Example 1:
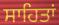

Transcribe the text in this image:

ਸਾਹਿਤਾਂ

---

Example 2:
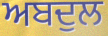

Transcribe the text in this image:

ਅਬਦੁਲ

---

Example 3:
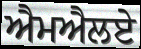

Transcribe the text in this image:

ਐਮਐਲਏ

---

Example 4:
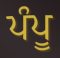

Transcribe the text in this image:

ਪੰਪੂ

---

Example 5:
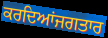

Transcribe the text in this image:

ਕਰਦਿਆਂਜਗਤਾਰ